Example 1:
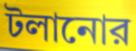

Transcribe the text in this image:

টলানোর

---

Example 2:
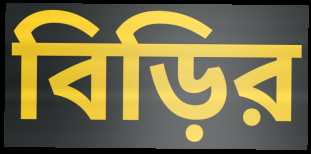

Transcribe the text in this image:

বিড়ির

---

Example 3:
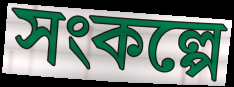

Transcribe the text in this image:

সংকল্পে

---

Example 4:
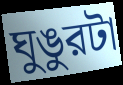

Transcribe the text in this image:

ঘুঙুরটা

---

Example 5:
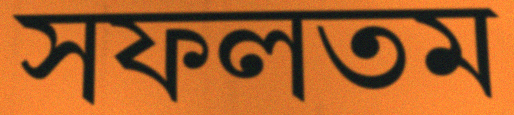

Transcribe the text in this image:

সফলতম